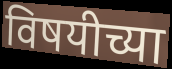
विषयीच्या